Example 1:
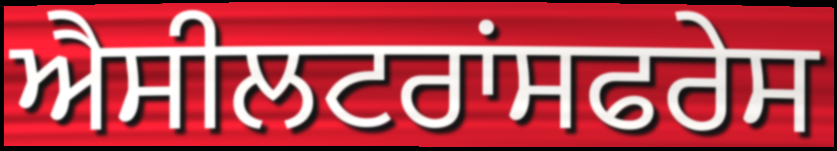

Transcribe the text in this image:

ਐਸੀਲਟਰਾਂਸਫਰੇਸ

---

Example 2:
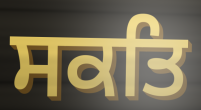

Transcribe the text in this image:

ਸਕਤਿ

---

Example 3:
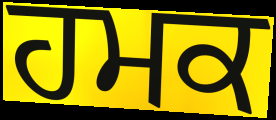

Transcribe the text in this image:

ਹਮਕ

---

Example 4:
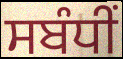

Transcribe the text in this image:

ਸਬੰਧੀਂ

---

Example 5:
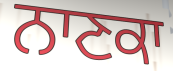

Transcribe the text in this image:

ਨਾਣਕਾ